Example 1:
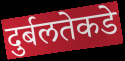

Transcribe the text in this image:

दुर्बलतेकडे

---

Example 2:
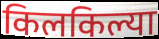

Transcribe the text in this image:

किलकिल्या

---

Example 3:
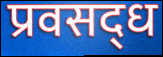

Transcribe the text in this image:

प्रवसद्ध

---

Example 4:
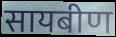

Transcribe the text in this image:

सायबीण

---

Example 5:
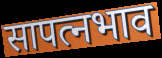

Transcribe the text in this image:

सापत्नभाव